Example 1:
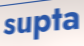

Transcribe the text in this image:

supta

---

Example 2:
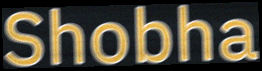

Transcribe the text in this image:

Shobha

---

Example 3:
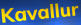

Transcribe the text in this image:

Kavallur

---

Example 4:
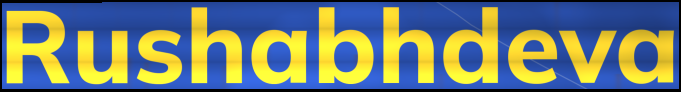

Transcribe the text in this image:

Rushabhdeva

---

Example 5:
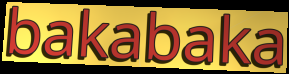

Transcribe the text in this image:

bakabaka